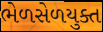
ભેળસેળયુક્ત